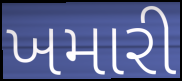
ખમારી